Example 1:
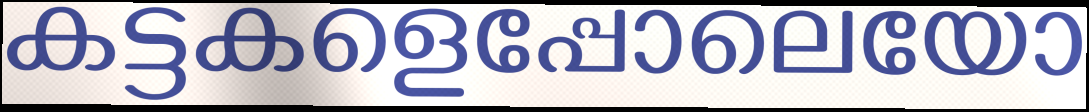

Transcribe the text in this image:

കട്ടകളെപ്പോലെയോ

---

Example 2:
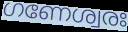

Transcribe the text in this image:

ഗണേശ്വരഃ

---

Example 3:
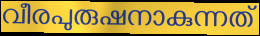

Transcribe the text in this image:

വീരപുരുഷനാകുന്നത്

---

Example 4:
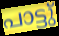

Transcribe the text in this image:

പാട്ടു്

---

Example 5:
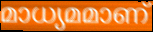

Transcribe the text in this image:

മാധ്യമമാണ്